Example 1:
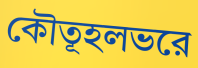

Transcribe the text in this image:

কৌতূহলভরে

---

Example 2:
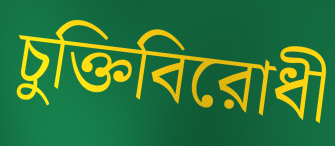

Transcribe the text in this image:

চুক্তিবিরোধী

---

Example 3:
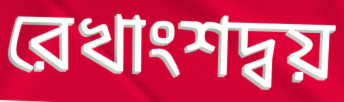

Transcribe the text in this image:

রেখাংশদ্বয়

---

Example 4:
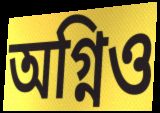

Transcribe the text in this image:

অগ্নিও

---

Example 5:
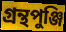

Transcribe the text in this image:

গ্রন্থপুঞ্জি